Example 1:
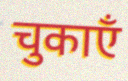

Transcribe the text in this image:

चुकाएँ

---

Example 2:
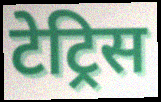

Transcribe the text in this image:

टेट्रिस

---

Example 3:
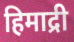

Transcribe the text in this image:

हिमाद्री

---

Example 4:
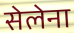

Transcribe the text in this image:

सेलेना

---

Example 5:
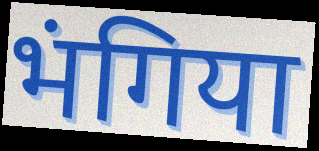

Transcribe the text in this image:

भंगिया